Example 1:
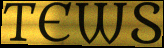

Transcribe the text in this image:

TEWS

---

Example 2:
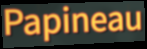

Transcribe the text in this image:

Papineau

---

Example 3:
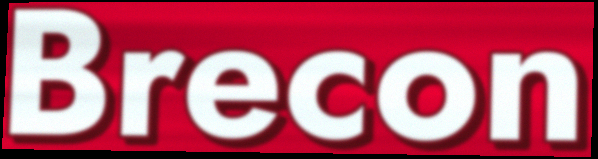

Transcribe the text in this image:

Brecon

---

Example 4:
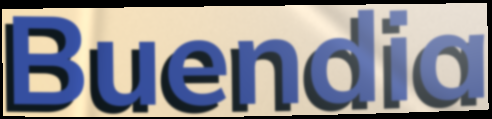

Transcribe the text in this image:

Buendia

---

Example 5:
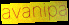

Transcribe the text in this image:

avanipa